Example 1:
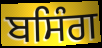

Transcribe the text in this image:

ਬਸਿੰਗ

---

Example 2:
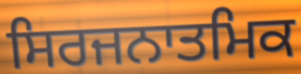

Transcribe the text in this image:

ਸਿਰਜਨਾਤਮਿਕ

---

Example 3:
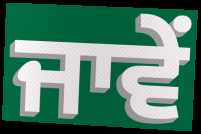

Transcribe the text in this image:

ਜਾਵੇਂ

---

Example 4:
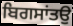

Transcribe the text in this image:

ਬਿਗਸਾਂਤਉ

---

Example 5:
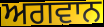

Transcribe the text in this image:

ਅਗਵਾਨ